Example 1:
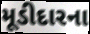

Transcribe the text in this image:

મૂડીદારના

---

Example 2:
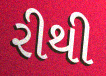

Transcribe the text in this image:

રીથી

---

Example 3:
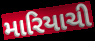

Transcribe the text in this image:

મારિયાચી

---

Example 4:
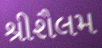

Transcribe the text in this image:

શ્રીશૈલમ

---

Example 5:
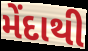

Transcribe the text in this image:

મેંદાથી